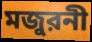
মজুরনী